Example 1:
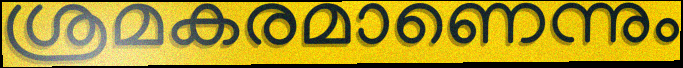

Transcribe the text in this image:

ശ്രമകരമാണെന്നും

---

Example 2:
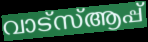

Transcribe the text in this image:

വാട്സ്ആപ്പ്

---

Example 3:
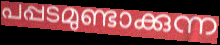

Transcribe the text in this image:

പപ്പടമുണ്ടാക്കുന്ന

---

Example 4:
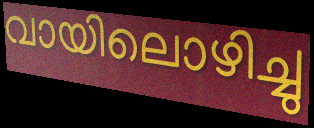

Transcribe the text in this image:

വായിലൊഴിച്ചു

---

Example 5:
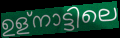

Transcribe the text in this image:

ഉള്നാട്ടിലെ